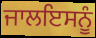
ਜਾਲਇਸਨੂੰ